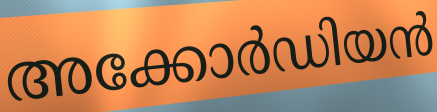
അക്കോർഡിയൻ